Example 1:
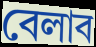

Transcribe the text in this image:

বেলাব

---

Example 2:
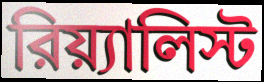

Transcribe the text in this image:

রিয়্যালিস্ট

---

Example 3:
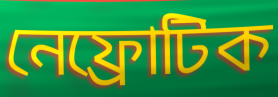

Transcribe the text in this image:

নেফ্রোটিক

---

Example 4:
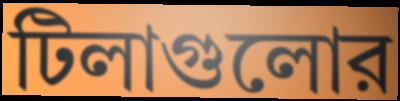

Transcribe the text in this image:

টিলাগুলোর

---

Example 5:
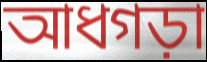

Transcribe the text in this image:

আধগড়া